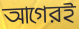
আগেরই